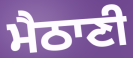
ਮੈਠਾਣੀ